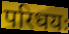
परिधयः